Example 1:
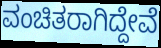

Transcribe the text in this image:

ವಂಚಿತರಾಗಿದ್ದೇವೆ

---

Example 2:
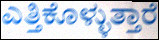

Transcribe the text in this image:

ಎತ್ತಿಕೊಳ್ಳುತ್ತಾರೆ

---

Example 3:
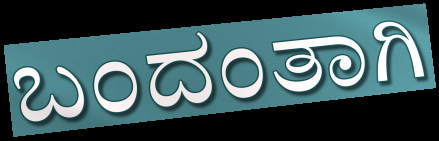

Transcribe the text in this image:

ಬಂದಂತಾಗಿ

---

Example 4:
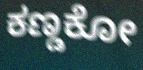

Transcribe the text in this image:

ಕಣ್ಡಕೋ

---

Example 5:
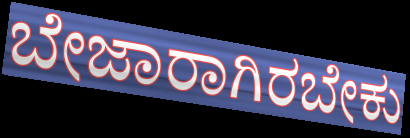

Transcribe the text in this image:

ಬೇಜಾರಾಗಿರಬೇಕು